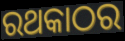
ରଥକାଠର